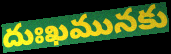
దుఃఖమునకు